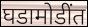
घडामोडींत